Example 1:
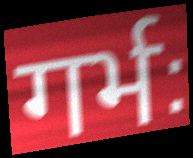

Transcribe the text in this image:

गर्भः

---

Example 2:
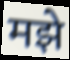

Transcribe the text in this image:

मझे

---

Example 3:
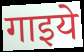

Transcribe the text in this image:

गाइये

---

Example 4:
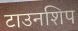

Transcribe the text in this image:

टाउनशिप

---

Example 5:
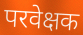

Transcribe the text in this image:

परवेक्षक